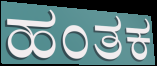
ಹಂತಕ